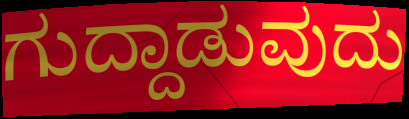
ಗುದ್ದಾಡುವುದು